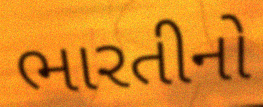
ભારતીનો